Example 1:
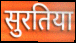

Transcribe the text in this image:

सुरतिया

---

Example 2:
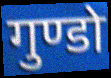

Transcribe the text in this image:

गुण्डो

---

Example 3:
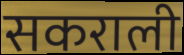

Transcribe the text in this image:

सकराली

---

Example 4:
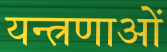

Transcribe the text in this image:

यन्त्रणाओं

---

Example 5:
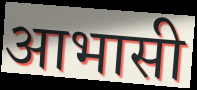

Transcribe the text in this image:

आभासी